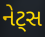
નેટ્સ